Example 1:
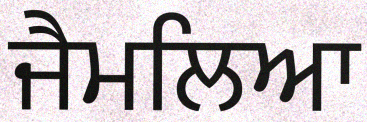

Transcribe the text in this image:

ਜੈਮਲਿਆ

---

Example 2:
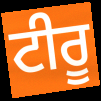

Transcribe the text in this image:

ਟੀਰੂ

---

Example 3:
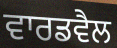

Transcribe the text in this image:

ਵਾਰਡਵੈਲ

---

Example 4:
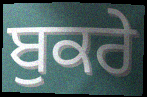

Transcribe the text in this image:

ਬੁਕਰੇ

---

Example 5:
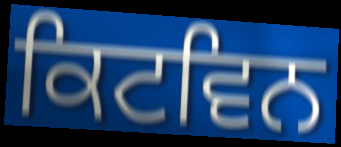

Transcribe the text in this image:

ਕਿਟਵਿਨ